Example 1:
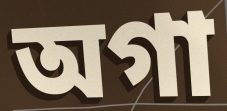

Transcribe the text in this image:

অগা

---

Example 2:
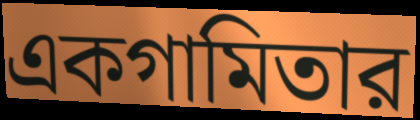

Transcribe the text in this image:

একগামিতার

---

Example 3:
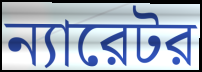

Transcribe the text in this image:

ন্যারেটর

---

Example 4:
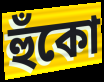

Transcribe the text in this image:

হুঁকো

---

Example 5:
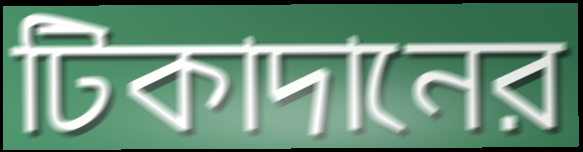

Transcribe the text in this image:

টিকাদানের